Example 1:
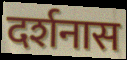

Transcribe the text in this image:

दर्शनास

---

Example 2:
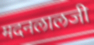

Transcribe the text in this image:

मदनलालजी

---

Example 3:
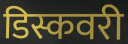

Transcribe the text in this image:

डिस्कवरी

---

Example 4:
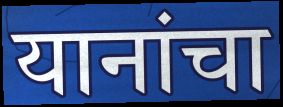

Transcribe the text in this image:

यानांचा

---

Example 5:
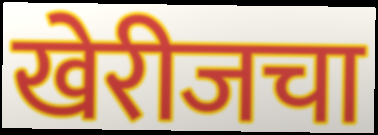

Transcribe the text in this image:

खेरीजचा